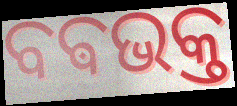
ବଵଭକ୍ତ